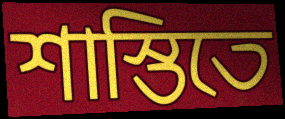
শাস্তিতে